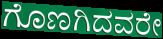
ಗೊಣಗಿದವರೇ